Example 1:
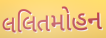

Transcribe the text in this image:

લલિતમોહન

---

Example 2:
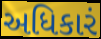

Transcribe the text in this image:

અધિકારં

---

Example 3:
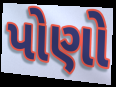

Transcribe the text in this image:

પોણો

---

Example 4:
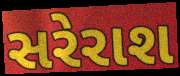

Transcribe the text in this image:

સરેરાશ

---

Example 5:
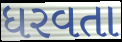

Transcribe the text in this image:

ધરવતા